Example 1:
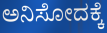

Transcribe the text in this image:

ಅನಿಸೋದಕ್ಕೆ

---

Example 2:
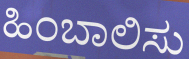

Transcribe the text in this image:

ಹಿಂಬಾಲಿಸು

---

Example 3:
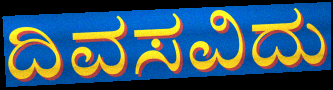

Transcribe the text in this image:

ದಿವಸವಿದು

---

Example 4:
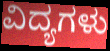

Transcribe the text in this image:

ವಿದ್ಯಗಳು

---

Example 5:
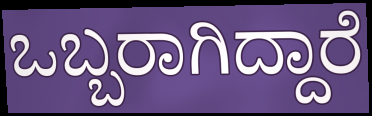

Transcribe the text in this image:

ಒಬ್ಬರಾಗಿದ್ದಾರೆ